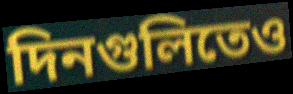
দিনগুলিতেও